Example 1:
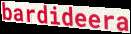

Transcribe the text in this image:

bardideera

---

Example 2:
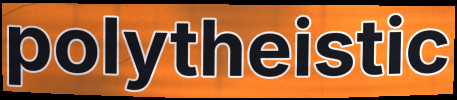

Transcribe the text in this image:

polytheistic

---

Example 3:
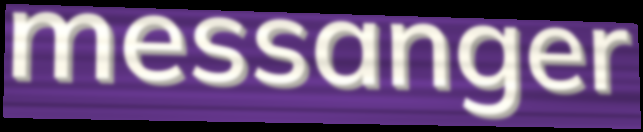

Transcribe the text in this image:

messanger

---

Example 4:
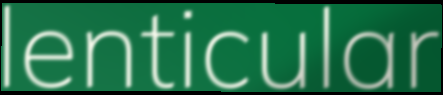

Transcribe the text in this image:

lenticular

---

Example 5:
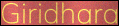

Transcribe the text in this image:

Giridhara